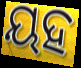
ୟହ